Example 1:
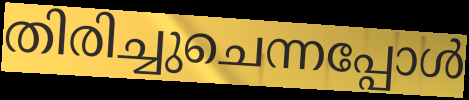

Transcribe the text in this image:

തിരിച്ചുചെന്നപ്പോൾ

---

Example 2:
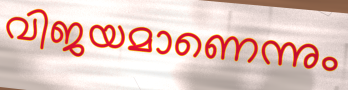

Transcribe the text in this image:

വിജയമാണെന്നും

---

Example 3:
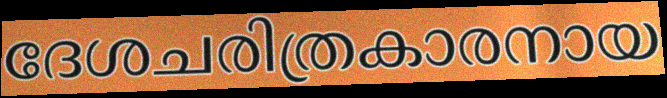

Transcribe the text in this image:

ദേശചരിത്രകാരനായ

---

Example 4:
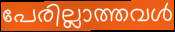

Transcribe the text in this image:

പേരില്ലാത്തവൾ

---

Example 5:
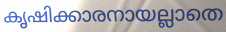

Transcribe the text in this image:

കൃഷിക്കാരനായല്ലാതെ